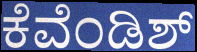
ಕೆವೆಂಡಿಶ್